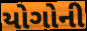
યોગોની